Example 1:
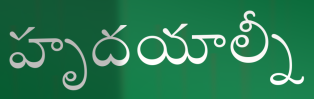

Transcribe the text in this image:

హృదయాల్నీ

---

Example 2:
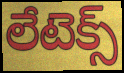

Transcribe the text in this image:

లేటెక్స్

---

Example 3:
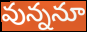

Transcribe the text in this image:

వున్ననూ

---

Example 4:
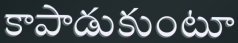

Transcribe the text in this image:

కాపాడుకుంటూ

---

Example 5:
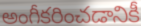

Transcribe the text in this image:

అంగీకరించడానికీ